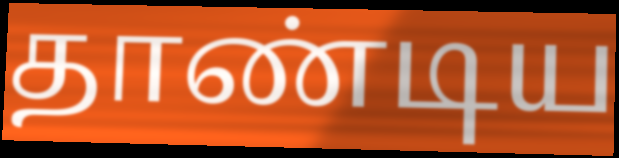
தாண்டிய